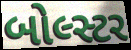
બોલ્સ્ટર